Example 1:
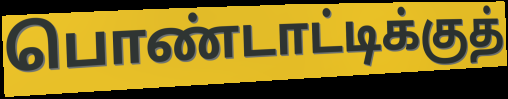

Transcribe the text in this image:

பொண்டாட்டிக்குத்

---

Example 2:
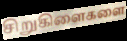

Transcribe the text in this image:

சிறுகிளைகளை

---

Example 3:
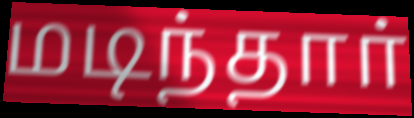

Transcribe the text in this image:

மடிந்தார்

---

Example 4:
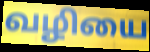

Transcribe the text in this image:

வழியை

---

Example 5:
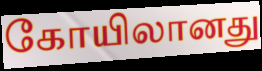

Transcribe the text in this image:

கோயிலானது